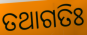
ତଥାଗତିଃ